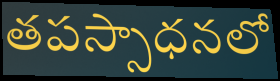
తపస్సాధనలో